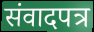
संवादपत्र